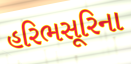
હરિભસૂરિના